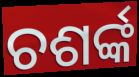
ଚଶର୍ଙ୍କ